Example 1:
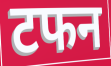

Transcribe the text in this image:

टफन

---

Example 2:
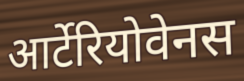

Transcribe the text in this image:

आर्टेरियोवेनस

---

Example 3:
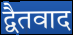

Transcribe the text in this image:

द्वैतवाद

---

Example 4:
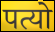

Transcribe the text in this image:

पत्यो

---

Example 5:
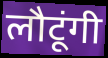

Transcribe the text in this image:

लौटूंगी